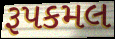
રૂપકમલ